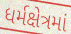
ધર્મક્ષેત્રમાં